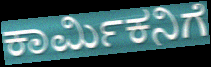
ಕಾರ್ಮಿಕನಿಗೆ